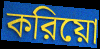
করিয়ো